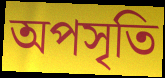
অপসৃতি